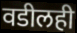
वडीलही